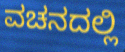
ವಚನದಲ್ಲಿ